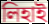
লিহাই